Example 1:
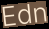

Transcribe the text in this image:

Edn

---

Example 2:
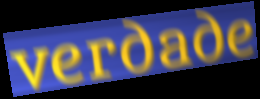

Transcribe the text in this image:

verdade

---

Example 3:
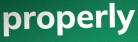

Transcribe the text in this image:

properly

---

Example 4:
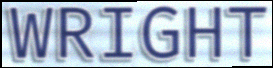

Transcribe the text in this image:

WRIGHT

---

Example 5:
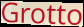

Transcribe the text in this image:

Grotto